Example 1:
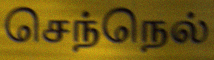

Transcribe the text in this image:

செந்நெல்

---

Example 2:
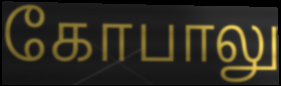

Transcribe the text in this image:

கோபாலு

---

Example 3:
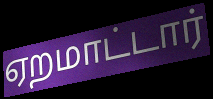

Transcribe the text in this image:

ஏறமாட்டார்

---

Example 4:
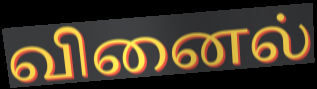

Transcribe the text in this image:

வினைல்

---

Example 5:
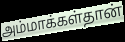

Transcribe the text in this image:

அம்மாக்கள்தான்